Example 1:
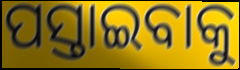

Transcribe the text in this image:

ପସ୍ତାଇବାକୁ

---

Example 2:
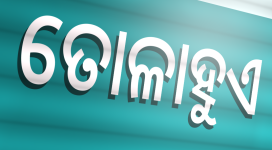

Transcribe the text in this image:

ତୋଳାହୁଏ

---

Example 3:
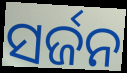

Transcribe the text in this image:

ସର୍ଜନ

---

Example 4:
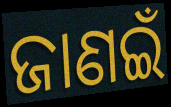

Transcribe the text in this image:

ଜାଣଇଁ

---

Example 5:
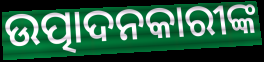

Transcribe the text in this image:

ଉତ୍ପାଦନକାରୀଙ୍କ